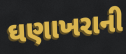
ઘણાખરાની